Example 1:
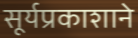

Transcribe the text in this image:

सूर्यप्रकाशाने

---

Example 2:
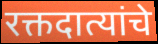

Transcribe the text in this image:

रक्तदात्यांचे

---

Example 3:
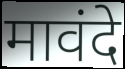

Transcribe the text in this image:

मावंदे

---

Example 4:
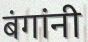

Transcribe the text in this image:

बंगांनी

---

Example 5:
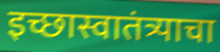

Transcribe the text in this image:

इच्छास्वातंत्र्याचा